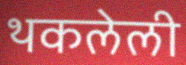
थकलेली